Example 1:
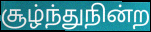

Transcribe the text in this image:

சூழ்ந்துநின்ற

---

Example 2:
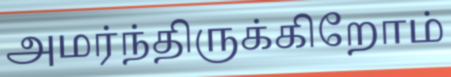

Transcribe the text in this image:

அமர்ந்திருக்கிறோம்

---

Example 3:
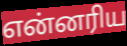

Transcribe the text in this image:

என்னரிய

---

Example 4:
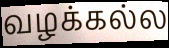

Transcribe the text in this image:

வழக்கல்ல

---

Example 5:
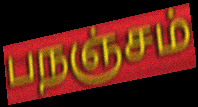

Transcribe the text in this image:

பநஞ்சம்